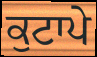
ਕੁਟਾਪੇ